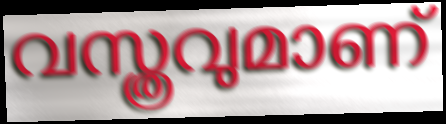
വസ്ത്രവുമാണ്